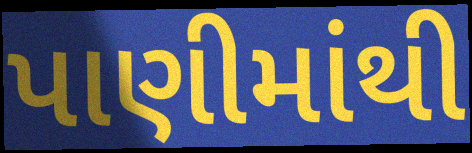
પાણીમાંથી